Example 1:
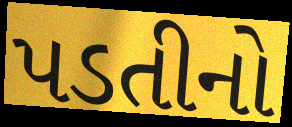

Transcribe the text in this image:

પડતીનો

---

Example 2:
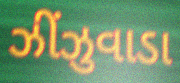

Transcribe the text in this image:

ઝીંઝુવાડા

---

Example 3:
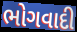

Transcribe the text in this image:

ભોગવાદી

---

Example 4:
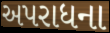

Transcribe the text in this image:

અપરાધના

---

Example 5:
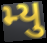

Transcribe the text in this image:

મ્યુ